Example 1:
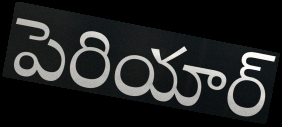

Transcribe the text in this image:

పెరియార్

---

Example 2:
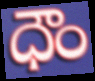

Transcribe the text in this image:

ధౌం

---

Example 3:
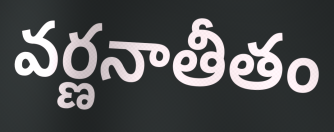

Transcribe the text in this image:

వర్ణనాతీతం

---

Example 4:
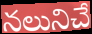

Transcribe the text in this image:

నలునిచే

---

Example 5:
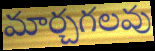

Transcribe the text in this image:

మార్చగలవు